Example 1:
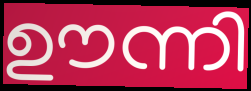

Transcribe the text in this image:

ഊന്നി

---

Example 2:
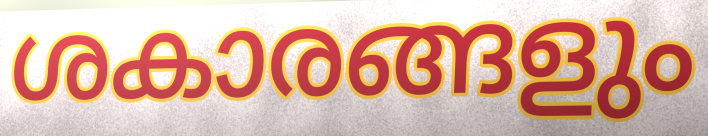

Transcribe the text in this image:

ശകാരങ്ങളും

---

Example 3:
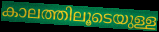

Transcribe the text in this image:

കാലത്തിലൂടെയുള്ള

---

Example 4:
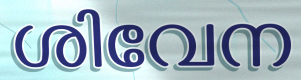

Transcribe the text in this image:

ശിവേന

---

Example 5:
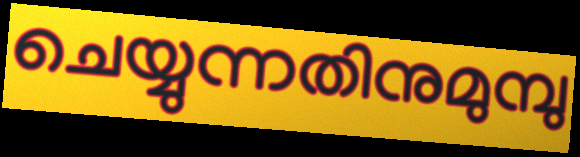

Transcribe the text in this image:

ചെയ്യുന്നതിനുമുമ്പു